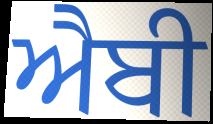
ਐਬੀ